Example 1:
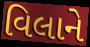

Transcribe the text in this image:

વિલાને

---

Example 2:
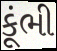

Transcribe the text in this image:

કૂંભી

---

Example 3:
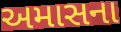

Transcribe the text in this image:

અમાસના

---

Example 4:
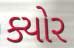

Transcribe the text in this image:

ક્યોર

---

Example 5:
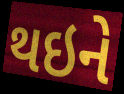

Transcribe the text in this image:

થઇને